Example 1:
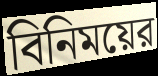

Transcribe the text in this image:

বিনিময়ের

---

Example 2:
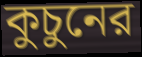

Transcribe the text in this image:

কুচুনের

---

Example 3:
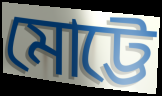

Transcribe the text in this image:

মোট্টে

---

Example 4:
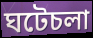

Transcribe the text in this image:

ঘটেচলা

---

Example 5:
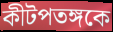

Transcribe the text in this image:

কীটপতঙ্গকে